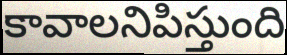
కావాలనిపిస్తుంది